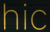
hic